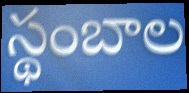
స్థంబాల